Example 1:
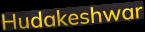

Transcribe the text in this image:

Hudakeshwar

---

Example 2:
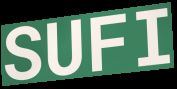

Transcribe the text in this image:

SUFI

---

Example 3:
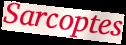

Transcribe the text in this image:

Sarcoptes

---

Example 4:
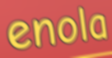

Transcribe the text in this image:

enola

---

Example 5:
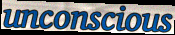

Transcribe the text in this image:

unconscious